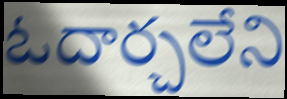
ఓదార్చలేని